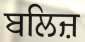
ਬਲਿਜ਼